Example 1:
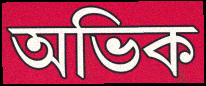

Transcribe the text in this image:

অভিক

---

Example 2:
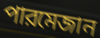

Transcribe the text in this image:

পারমেজান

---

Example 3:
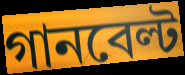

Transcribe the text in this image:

গানবেল্ট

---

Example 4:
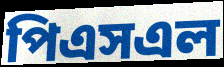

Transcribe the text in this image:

পিএসএল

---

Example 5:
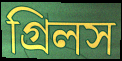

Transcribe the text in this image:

গ্রিলস